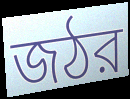
জঠর